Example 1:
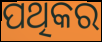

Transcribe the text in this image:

ପଥିକର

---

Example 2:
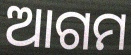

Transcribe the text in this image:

ଆଗମ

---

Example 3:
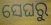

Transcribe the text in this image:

ସେଘରୁ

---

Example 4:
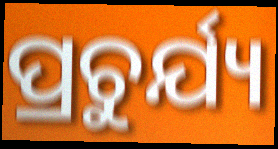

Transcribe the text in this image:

ପ୍ରଚୁର୍ଯ୍ୟ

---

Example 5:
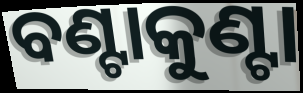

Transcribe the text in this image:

ବଣ୍ଟାକୁଣ୍ଟା